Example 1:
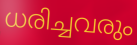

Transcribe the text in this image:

ധരിച്ചവരും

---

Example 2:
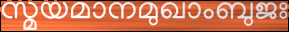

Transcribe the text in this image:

സ്മയമാനമുഖാംബുജഃ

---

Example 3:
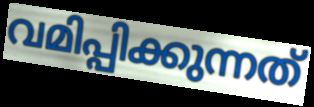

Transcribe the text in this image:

വമിപ്പിക്കുന്നത്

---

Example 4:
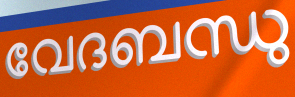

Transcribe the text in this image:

വേദബന്ധു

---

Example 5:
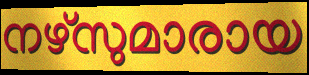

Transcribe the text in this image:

നഴ്സുമാരായ